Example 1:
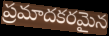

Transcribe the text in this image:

ప్రమాదకరమైన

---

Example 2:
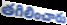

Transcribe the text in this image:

తగిలించారు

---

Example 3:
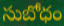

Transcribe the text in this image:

సుబోధం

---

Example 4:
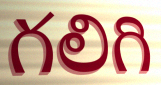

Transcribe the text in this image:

గలిగి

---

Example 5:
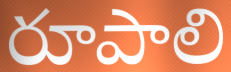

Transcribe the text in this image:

రూపాలి